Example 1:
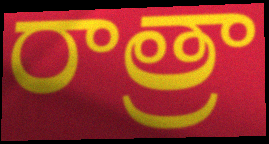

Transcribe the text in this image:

రాత్రా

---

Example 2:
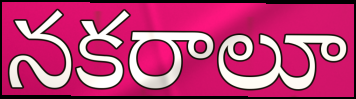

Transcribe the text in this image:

నకరాలూ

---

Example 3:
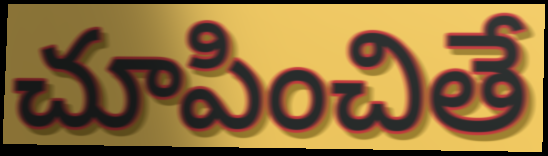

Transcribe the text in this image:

చూపించితే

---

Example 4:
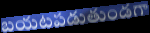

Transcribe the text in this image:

బయటపడుతుండగా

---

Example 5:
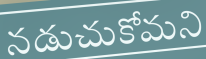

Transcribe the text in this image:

నడుచుకోమని